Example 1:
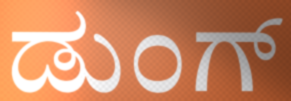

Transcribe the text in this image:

ಡುಂಗ್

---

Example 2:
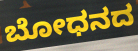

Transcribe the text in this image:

ಬೋಧನದ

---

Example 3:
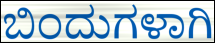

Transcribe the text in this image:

ಬಿಂದುಗಳಾಗಿ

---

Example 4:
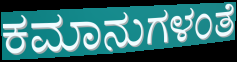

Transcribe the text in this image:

ಕಮಾನುಗಳಂತೆ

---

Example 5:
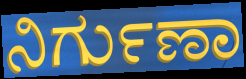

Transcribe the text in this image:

ನಿರ್ಗುಣಾ